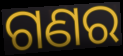
ଗଣର